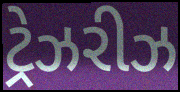
ટ્રેઝરીઝ